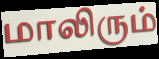
மாலிரும்